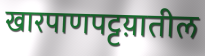
खारपाणपट्टय़ातील